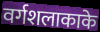
वर्गशलाकाके